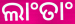
ଲାଂତାଂ